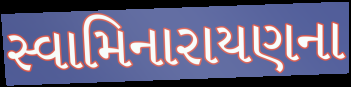
સ્વામિનારાયણના